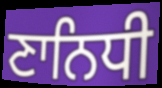
ਣਾਨਿਧੀ